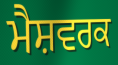
ਮੈਸ਼ਵਰਕ